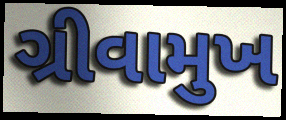
ગ્રીવામુખ